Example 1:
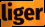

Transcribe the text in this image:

liger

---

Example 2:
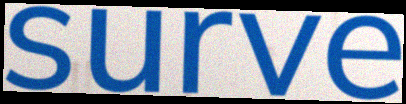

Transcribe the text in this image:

surve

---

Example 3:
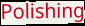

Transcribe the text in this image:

Polishing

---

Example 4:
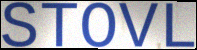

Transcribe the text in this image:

STOVL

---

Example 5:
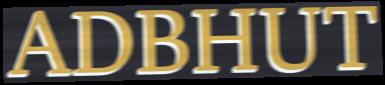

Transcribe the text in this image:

ADBHUT